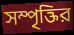
সম্পৃক্তির